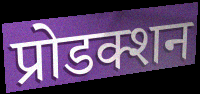
प्रोडक्शन